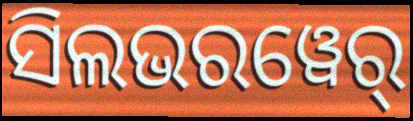
ସିଲଭରୱେର୍